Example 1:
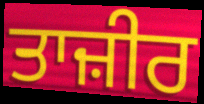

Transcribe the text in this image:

ਤਾਜ਼ੀਰ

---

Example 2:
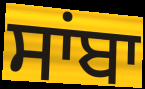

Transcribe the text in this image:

ਸਾਂਬਾ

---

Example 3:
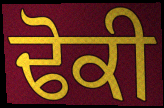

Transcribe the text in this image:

ਢੋਕੀ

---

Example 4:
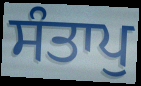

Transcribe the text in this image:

ਸੰਤਾਪੁ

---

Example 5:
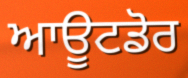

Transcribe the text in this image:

ਆਊਟਡੋਰ